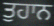
ਤੁਹਾਨ